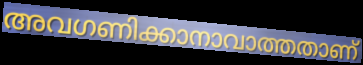
അവഗണിക്കാനാവാത്തതാണ്